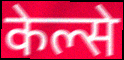
केल्से